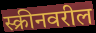
स्क्रीनवरील